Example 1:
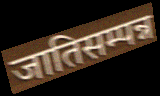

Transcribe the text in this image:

जातिसम्पन्न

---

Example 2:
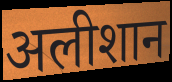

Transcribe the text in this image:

अलीशान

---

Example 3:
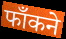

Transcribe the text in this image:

फाँकने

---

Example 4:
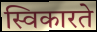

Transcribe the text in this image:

स्विकारते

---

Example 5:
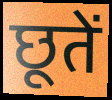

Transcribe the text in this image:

छूतें